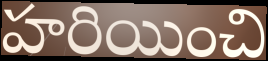
హరియించి